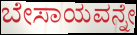
ಬೇಸಾಯವನ್ನೇ